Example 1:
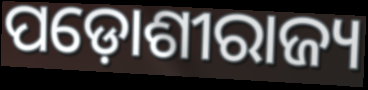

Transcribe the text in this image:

ପଡ଼ୋଶୀରାଜ୍ୟ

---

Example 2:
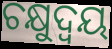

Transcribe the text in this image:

ଚକ୍ଷୁଦ୍ଵୟ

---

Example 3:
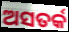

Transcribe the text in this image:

ଅସତର୍କ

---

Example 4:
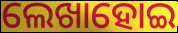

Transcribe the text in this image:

ଲେଖାହୋଇ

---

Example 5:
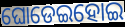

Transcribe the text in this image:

ଘୋଡେଇହୋଇ